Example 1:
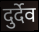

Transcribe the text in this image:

दुर्देव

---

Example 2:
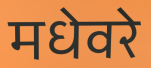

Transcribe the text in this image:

मधेवरे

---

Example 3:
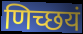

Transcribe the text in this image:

णिच्छयं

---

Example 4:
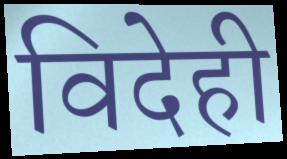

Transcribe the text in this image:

विदेही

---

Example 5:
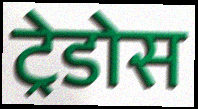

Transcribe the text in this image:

ट्रेडोस